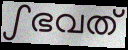
ഽഭവത്